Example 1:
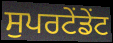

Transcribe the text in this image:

ਸੁਪਰਟੇਂਡੇਂਟ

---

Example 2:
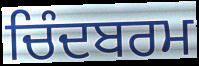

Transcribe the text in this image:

ਚਿੰਦਬਰਮ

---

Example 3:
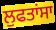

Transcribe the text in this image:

ਲੁਫਤਾਂਸਾ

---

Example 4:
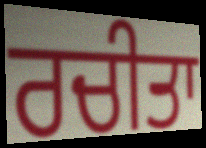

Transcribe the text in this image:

ਰਚੀਤਾ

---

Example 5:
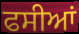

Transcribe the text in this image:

ਫਸੀਆਂ